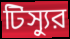
টিস্যুর